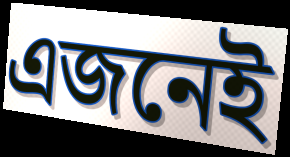
এজনেই